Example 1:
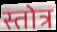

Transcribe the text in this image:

स्तोत्र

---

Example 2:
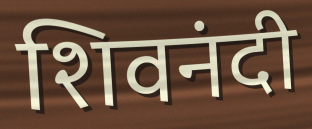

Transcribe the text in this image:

शिवनंदी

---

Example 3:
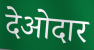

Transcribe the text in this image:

देओदार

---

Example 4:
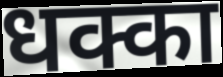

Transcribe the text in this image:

धक्का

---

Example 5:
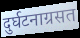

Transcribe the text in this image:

दुर्घटनाग्रसत